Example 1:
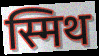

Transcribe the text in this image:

स्मिथ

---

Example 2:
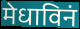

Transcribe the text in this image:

मेधाविनं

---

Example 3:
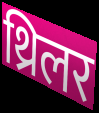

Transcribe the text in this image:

थ्रिलर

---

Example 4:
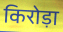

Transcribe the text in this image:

किरोड़ा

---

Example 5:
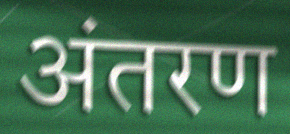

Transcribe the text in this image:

अंतरण